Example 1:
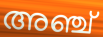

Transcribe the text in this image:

അഞ്ച്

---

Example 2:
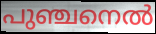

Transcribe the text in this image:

പുഞ്ചനെൽ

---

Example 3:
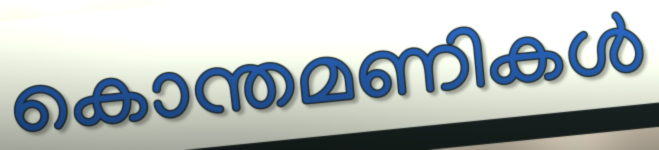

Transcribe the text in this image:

കൊന്തമണികൾ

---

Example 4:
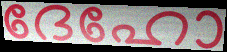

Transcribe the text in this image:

ദേഹോ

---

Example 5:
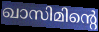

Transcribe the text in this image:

ഖാസിമിന്റെ